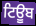
ਟਿਊੂਬ